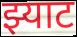
झ्याट